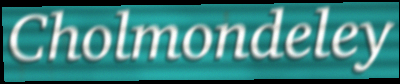
Cholmondeley